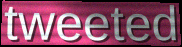
tweeted